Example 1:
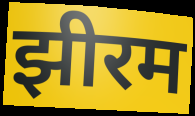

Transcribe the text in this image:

झीरम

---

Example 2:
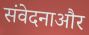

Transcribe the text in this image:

संवेदनाऔर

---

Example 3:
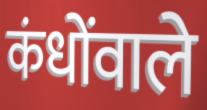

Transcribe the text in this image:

कंधोंवाले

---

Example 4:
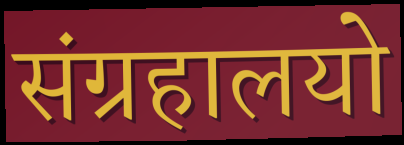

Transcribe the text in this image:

संग्रहालयो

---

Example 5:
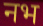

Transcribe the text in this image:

नभ